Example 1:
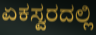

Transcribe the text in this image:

ಏಕಸ್ವರದಲ್ಲಿ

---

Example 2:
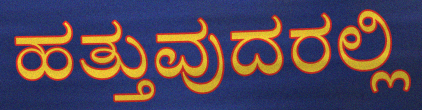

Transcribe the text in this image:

ಹತ್ತುವುದರಲ್ಲಿ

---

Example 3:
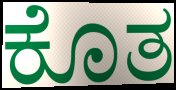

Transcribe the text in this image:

ಕೊತ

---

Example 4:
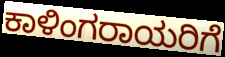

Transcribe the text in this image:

ಕಾಳಿಂಗರಾಯರಿಗೆ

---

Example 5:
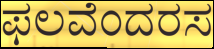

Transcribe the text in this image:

ಫಲವೆಂದರಸ